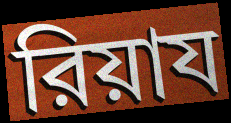
রিয়ায